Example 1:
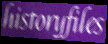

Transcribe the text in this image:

historyfiles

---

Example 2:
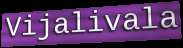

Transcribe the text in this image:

Vijalivala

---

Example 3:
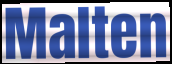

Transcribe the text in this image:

Malten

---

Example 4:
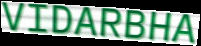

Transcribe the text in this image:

VIDARBHA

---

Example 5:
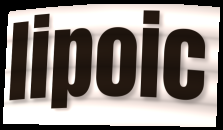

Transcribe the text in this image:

lipoic